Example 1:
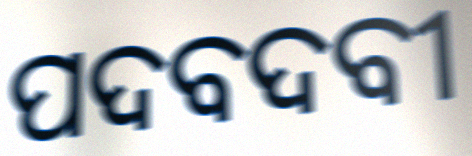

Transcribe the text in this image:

ପଦବଦବୀ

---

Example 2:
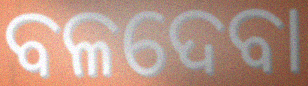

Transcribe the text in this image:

ବଳଦେବା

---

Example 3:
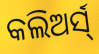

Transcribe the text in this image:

କଲିଅର୍ସ୍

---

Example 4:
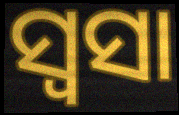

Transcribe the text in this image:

ସ୍ୱସା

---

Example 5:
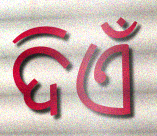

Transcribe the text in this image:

ଦିଏଁ